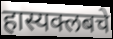
हास्यक्लबचे